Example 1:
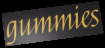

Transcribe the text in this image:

gummies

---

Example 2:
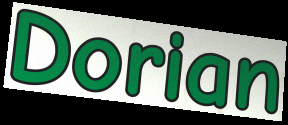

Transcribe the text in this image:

Dorian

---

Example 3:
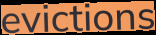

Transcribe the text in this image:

evictions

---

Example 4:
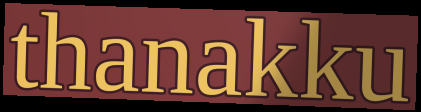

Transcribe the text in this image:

thanakku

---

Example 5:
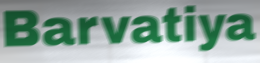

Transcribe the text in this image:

Barvatiya